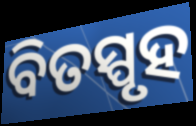
ବିତସ୍ପୃହ